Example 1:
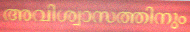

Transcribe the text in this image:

അവിശ്വാസത്തിനും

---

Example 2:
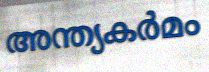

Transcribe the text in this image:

അന്ത്യകർമം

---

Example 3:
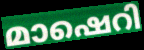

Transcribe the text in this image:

മാഷെറി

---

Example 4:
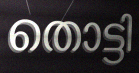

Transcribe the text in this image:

തൊട്ടി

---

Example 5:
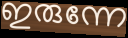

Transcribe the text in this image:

ഇരുന്നേ